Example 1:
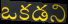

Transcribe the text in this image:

ఒకడని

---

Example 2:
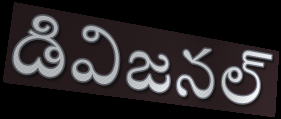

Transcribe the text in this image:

డివిజనల్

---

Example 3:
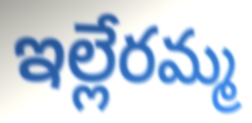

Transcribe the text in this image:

ఇల్లేరమ్మ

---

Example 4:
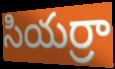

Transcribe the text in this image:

సియర్రా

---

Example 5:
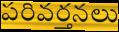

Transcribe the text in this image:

పరివర్తనలు